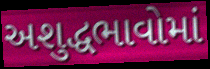
અશુદ્ધભાવોમાં